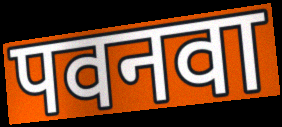
पवनवा